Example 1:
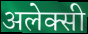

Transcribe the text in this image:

अलेक्सी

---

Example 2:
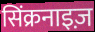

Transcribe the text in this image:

सिंक्रनाइज़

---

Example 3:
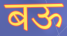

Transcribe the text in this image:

बऊ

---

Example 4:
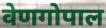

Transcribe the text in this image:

वेणगोपाल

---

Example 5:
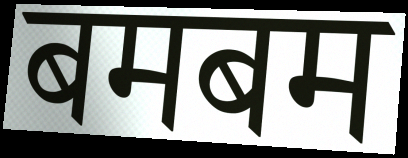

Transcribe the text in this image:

बमबम